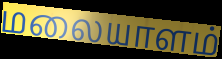
மலையாளம்